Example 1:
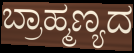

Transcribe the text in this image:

ಬ್ರಾಹ್ಮಣ್ಯದ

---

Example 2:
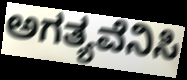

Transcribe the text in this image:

ಅಗತ್ಯವೆನಿಸಿ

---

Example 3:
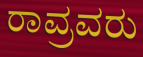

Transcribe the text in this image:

ರಾವ್ರವರು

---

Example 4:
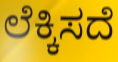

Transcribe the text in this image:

ಲೆಕ್ಕಿಸದೆ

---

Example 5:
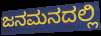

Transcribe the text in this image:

ಜನಮನದಲ್ಲಿ